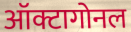
ऑक्टागोनल